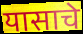
यासाचे